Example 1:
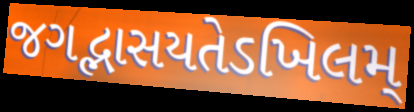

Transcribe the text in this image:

જગદ્ભાસયતેઽખિલમ્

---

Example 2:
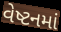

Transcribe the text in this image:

વેષ્ટનમાં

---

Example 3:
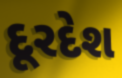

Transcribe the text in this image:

દૂરદેશ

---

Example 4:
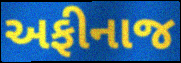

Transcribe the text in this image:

અફીનાજ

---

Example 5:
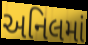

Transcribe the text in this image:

અનિલમાં